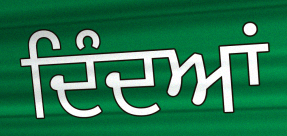
ਦਿੰਦਆਂ